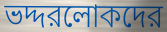
ভদ্দরলোকদের